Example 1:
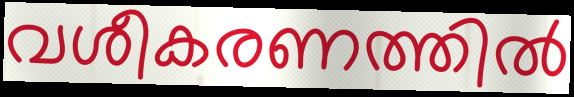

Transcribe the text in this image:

വശീകരണത്തിൽ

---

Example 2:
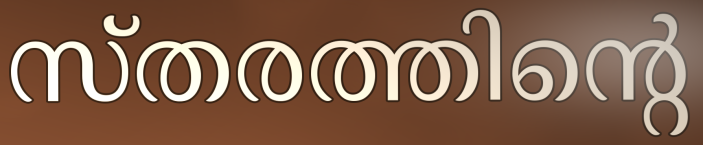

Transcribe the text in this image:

സ്തരത്തിന്റെ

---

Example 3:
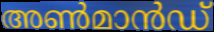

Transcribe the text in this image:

അൺമാൻഡ്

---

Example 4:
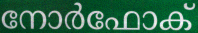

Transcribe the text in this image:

നോർഫോക്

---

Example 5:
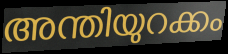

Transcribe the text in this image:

അന്തിയുറക്കം